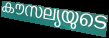
കൗസല്യയുടെ